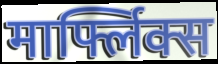
मार्फ्लिक्स